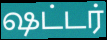
ஷட்டர்